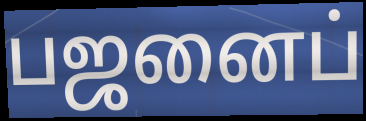
பஜனைப்